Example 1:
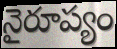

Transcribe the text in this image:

నైరూప్యం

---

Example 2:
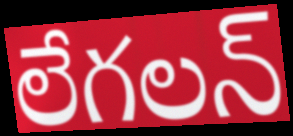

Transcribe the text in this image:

లేగలన్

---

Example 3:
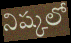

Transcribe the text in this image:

నిష్కలో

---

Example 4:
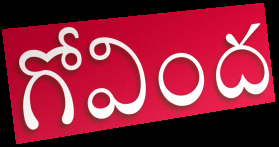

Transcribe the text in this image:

గోవింద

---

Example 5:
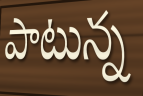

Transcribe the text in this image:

పాటున్న